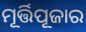
ମୂର୍ତ୍ତିପୂଜାର